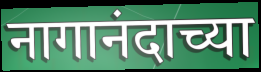
नागानंदाच्या